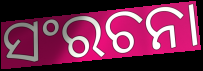
ସଂରଚନା